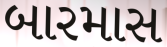
બારમાસ